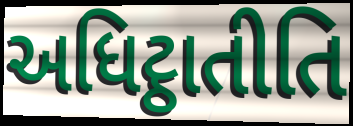
અધિટ્ઠાતીતિ